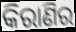
କିରାଣିର